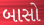
બાસો